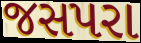
જસપરા